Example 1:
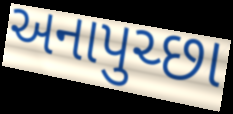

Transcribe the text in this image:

અનાપુચ્છા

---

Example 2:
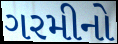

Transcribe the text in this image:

ગરમીનો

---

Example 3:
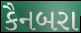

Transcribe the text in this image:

કૈનબરા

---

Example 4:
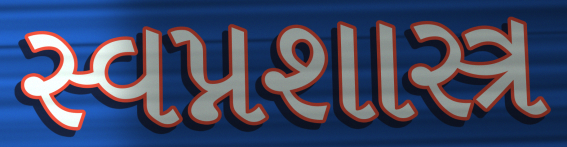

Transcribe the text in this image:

સ્વપ્નશાસ્ત્ર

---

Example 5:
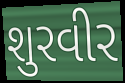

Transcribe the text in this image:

શુરવીર